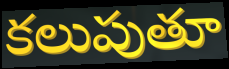
కలుపుతూ